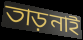
তাড়নাই